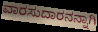
ವಾರಸುದಾರನನ್ನಾಗಿ